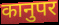
कानुपर